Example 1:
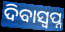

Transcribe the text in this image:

ଦିବାସ୍ଵପ୍ନ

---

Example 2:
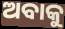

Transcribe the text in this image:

ଅବାକୁ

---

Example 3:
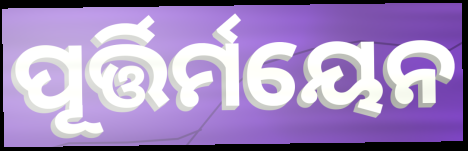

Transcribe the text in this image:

ପୂର୍ତ୍ତିର୍ମୟେନ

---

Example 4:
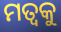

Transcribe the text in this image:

ମତ୍ୱକୁ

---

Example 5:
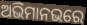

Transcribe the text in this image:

ଅଭିମାନଭରେ